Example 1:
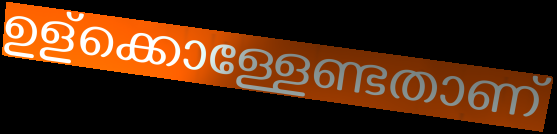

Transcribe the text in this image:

ഉള്ക്കൊള്ളേണ്ടതാണ്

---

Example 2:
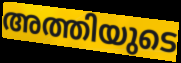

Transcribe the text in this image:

അത്തിയുടെ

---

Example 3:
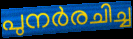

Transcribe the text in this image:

പുനർരചിച്ച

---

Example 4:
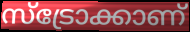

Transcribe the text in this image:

സ്ട്രോക്കാണ്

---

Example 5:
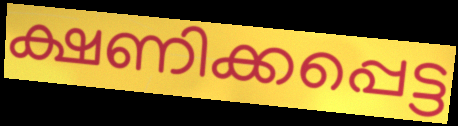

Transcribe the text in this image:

ക്ഷണിക്കപ്പെട്ട